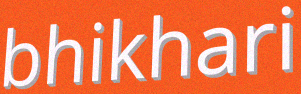
bhikhari